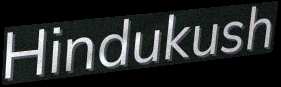
Hindukush